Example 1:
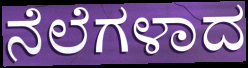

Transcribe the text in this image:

ನೆಲೆಗಳಾದ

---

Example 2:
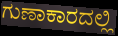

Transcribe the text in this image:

ಗುಣಾಕಾರದಲ್ಲಿ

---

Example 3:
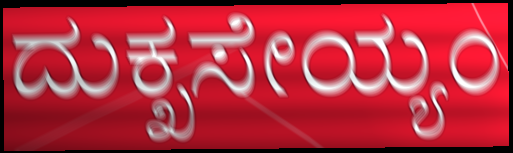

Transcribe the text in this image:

ದುಕ್ಖಸೇಯ್ಯಂ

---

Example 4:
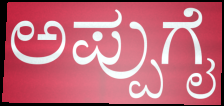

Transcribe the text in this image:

ಅಪ್ಪುಗೈ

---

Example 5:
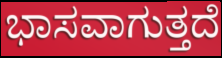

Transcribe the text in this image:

ಭಾಸವಾಗುತ್ತದೆ